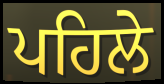
ਪਹਿਲੇ